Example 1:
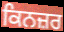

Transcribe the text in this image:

ਕਿਨਜ਼ਰ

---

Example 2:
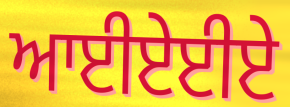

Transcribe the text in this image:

ਆਈਏਈਏ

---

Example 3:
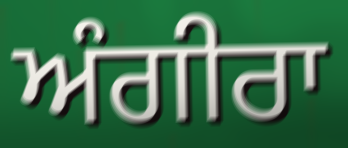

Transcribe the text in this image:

ਅੰਗੀਰਾ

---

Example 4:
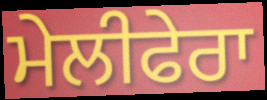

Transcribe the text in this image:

ਮੇਲੀਫੇਰਾ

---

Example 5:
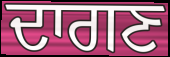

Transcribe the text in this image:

ਦਾਗਣ